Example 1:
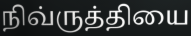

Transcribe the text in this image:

நிவ்ருத்தியை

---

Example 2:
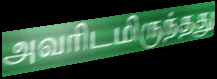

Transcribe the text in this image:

அவரிடமிருந்தது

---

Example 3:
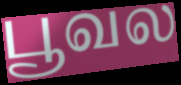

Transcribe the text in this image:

பூவல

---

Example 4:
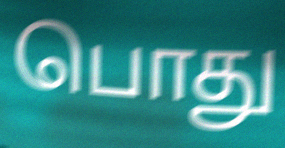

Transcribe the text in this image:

பொது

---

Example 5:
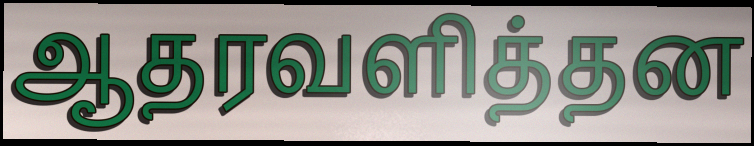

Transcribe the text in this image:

ஆதரவளித்தன